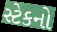
સ્ટેકનો